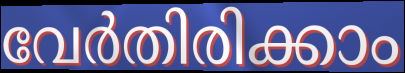
വേർതിരിക്കാം